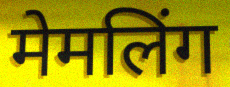
मेमलिंग